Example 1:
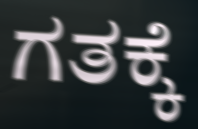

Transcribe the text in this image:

ಗತಕ್ಕೆ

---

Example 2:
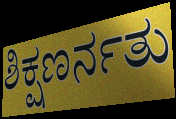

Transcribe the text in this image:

ಶಿಕ್ಷಣರ್ನತು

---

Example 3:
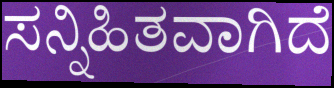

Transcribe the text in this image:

ಸನ್ನಿಹಿತವಾಗಿದೆ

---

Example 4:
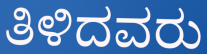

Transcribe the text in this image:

ತಿಳಿದವರು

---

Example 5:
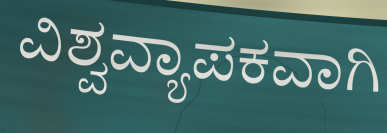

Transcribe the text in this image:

ವಿಶ್ವವ್ಯಾಪಕವಾಗಿ